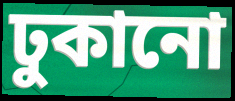
ঢুকানো